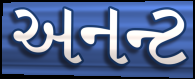
અનન્ટ